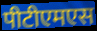
पीटीएमएस